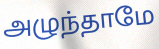
அழுந்தாமே